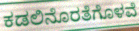
ಕಡಲಿನೊರತೆಗೊಳವೆ